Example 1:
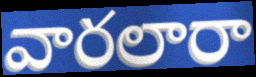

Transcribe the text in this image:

వారలారా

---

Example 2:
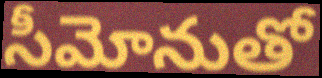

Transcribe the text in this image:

సీమోనుతో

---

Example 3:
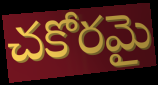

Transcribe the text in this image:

చకోరమై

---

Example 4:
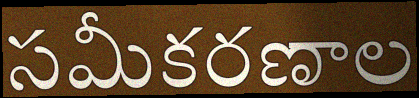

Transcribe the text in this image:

సమీకరణాల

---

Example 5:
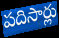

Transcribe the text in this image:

పదిసార్లు